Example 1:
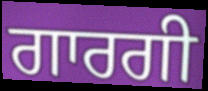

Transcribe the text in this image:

ਗਾਰਗੀ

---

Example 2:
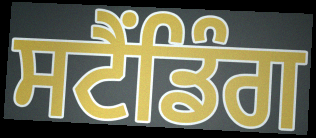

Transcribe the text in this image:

ਸਟੈਂਡਿੰਗ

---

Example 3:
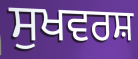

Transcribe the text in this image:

ਸੁਖਵਰਸ਼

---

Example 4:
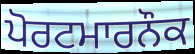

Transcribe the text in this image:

ਪੋਰਟਮਾਰਨੌਕ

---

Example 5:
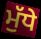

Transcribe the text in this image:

ਮੁੱਧੇ